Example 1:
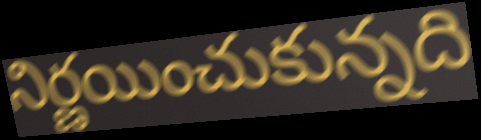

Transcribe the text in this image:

నిర్ణయించుకున్నది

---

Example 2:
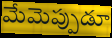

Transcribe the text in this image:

మేమెప్పుడూ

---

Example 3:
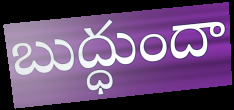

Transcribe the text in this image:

బుద్ధుందా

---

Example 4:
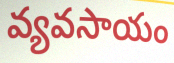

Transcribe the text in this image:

వ్యవసాయం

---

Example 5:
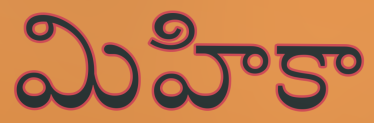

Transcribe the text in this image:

మిహికా